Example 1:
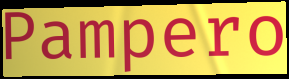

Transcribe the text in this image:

Pampero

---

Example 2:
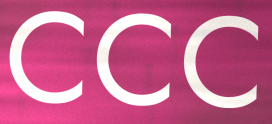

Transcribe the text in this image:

CCC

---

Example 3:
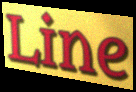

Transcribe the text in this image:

Line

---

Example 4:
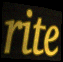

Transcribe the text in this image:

rite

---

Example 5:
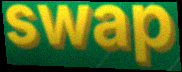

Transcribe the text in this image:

swap